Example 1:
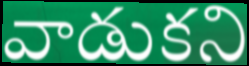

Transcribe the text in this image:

వాడుకని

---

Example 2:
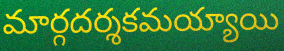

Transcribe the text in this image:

మార్గదర్శకమయ్యాయి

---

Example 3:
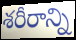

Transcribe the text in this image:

శరీరాన్ని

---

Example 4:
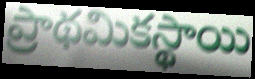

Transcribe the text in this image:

ప్రాథమికస్థాయి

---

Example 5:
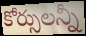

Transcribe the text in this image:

కోర్సులన్నీ